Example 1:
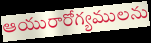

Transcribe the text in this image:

ఆయురారోగ్యములను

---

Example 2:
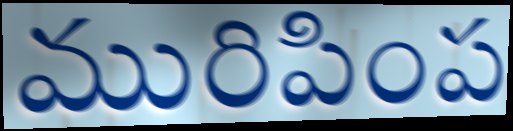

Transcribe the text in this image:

మురిపింప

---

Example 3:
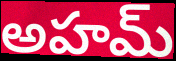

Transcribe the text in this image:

అహమ్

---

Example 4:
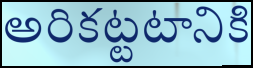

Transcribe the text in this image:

అరికట్టటానికి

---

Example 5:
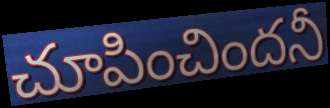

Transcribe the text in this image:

చూపించిందనీ